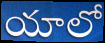
యాలో